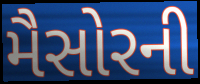
મૈસોરની